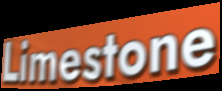
Limestone